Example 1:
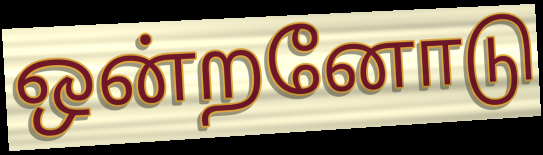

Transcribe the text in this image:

ஒன்றனோடு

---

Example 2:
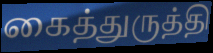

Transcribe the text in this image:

கைத்துருத்தி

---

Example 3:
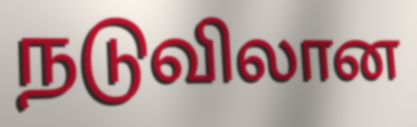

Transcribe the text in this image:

நடுவிலான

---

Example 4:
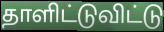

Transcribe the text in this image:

தாளிட்டுவிட்டு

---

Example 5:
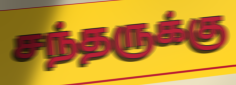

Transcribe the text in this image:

சந்தருக்கு